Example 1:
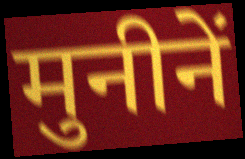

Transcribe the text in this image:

मुनीनें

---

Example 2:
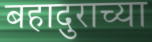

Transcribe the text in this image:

बहादुराच्या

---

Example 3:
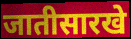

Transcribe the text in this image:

जातीसारखे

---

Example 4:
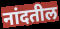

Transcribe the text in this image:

नांदतील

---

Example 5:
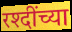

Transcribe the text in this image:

रश्दींच्या